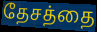
தேசத்தை